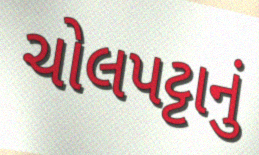
ચોલપટ્ટાનું